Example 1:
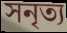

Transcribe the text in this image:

সনৃত্য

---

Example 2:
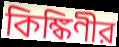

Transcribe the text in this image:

কিঙ্কিণীর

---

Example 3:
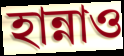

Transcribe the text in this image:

হান্নাও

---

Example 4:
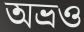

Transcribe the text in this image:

অভ্রও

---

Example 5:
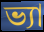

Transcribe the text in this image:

ভ্যা